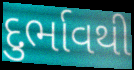
દુર્ભાવથી